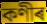
কণীৰ